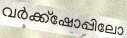
വർക്ക്ഷോപ്പിലോ